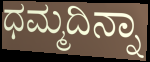
ಧಮ್ಮದಿನ್ನಾ